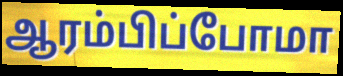
ஆரம்பிப்போமா